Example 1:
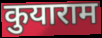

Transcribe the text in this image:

कुयाराम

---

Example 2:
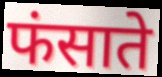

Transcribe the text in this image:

फंसाते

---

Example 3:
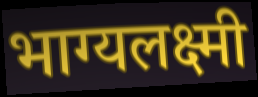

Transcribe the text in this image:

भाग्यलक्ष्मी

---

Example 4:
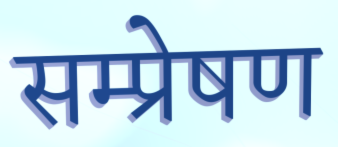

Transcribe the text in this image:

सम्प्रेषण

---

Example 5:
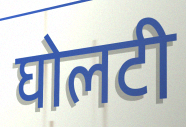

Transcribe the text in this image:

घोलटी